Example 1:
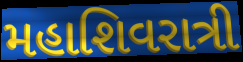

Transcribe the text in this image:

મહાશિવરાત્રી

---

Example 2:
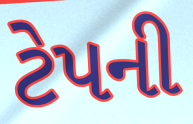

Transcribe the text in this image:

ટેપની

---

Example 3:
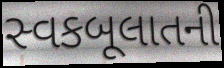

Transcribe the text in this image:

સ્વકબૂલાતની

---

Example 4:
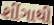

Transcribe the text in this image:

શીંગાથી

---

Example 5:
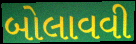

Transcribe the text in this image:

બોલાવવી